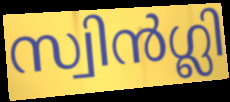
സ്വിൻഗ്ലി